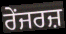
ਰੇਂਜਰਜ਼